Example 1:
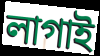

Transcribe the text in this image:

লাগাই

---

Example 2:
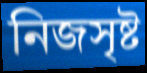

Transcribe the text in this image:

নিজসৃষ্ট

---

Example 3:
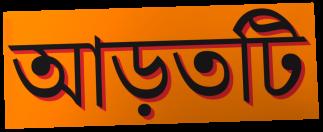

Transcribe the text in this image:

আড়তটি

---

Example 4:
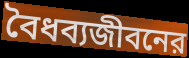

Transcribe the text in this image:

বৈধব্যজীবনের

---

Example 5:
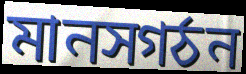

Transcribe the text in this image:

মানসগঠন